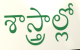
శాస్త్రాల్లో